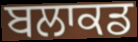
ਬਲਾਕਡ